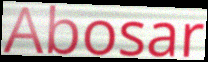
Abosar